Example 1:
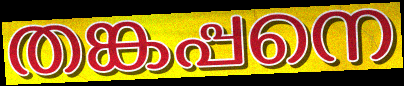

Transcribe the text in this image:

തങ്കപ്പനെ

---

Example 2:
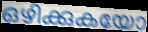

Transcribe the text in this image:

ഒഴിക്കുകയോ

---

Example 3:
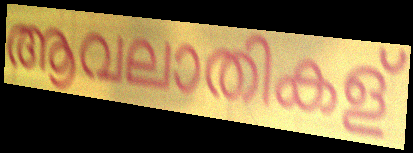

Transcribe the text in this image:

ആവലാതികള്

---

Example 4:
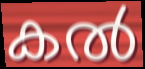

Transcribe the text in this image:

കൽ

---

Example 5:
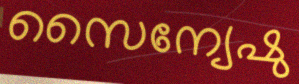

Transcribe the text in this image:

സൈന്യേഷു